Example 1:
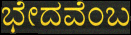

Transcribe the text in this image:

ಭೇದವೆಂಬ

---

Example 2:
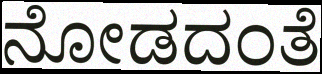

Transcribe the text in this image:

ನೋಡದಂತೆ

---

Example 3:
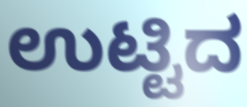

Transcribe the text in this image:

ಉಟ್ಟಿದ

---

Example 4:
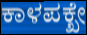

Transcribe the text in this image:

ಕಾಳಪಕ್ಖೇ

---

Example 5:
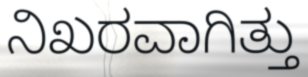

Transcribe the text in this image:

ನಿಖರವಾಗಿತ್ತು